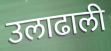
उलाढाली